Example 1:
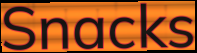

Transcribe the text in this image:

Snacks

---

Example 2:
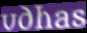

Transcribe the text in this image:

udhas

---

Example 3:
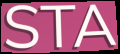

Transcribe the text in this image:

STA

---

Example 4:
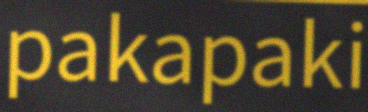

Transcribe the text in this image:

pakapaki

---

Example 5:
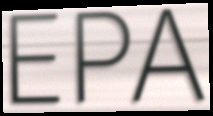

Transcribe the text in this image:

EPA